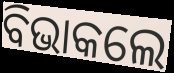
ବିଭାକଲେ